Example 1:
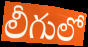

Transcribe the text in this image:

లీగులో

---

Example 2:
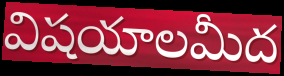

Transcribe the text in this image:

విషయాలమీద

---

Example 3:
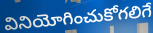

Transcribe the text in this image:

వినియోగించుకోగలిగే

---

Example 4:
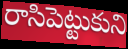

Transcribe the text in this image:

రాసిపెట్టుకుని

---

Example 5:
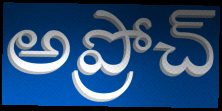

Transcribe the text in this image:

అప్రోచ్